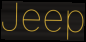
Jeep